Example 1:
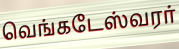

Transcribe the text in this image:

வெங்கடேஸ்வரர்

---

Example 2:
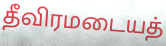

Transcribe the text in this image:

தீவிரமடையத்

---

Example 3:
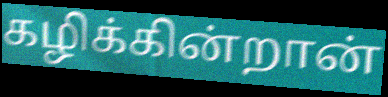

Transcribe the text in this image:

கழிக்கின்றான்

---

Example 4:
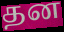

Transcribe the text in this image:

தன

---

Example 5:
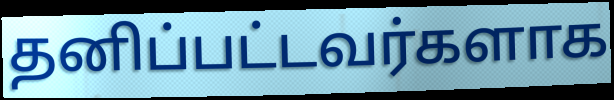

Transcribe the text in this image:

தனிப்பட்டவர்களாக